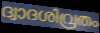
ദ്വാദശിവ്രതം